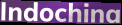
Indochina